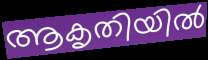
ആകൃതിയിൽ